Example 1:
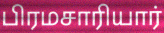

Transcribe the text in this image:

பிரமசாரியார்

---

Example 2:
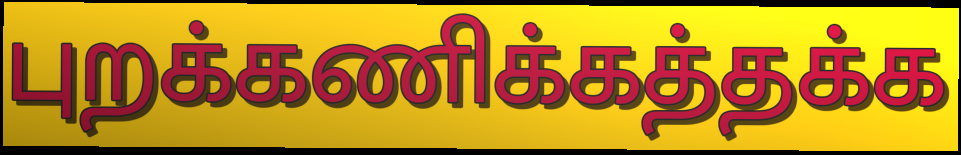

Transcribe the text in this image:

புறக்கணிக்கத்தக்க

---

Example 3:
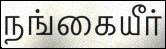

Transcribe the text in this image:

நங்கையீர்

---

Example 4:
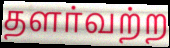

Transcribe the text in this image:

தளர்வற்ற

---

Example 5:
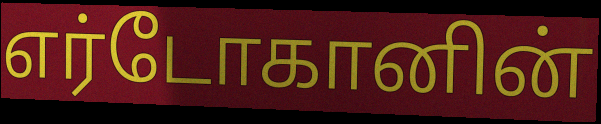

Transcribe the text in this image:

எர்டோகானின்